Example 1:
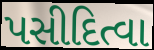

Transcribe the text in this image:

પસીદિત્વા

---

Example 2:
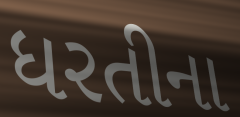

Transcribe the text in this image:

ધરતીના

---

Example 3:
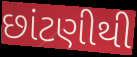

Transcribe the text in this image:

છાંટણીથી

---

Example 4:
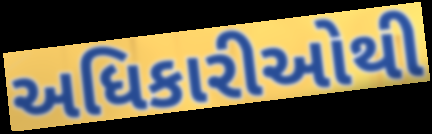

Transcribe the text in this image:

અધિકારીઓથી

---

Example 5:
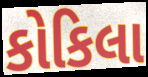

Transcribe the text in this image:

કોકિલા